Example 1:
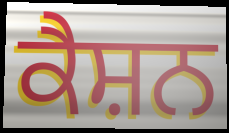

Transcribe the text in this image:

ਕੈਸ਼ਨ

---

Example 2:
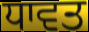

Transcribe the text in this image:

ਧਾਵਤ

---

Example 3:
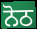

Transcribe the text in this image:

ਨੋਠ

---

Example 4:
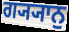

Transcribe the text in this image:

ਗ੍ਯ੍ਯਾਨੁ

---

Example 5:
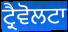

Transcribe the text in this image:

ਟ੍ਰੈਵੋਲਟਾ